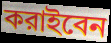
করাইবেন